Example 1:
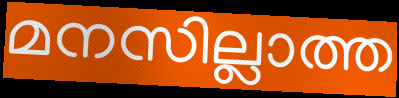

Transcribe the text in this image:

മനസില്ലാത്ത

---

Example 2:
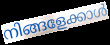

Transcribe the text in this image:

നിങ്ങളേക്കാൾ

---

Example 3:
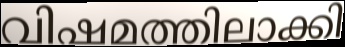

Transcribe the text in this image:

വിഷമത്തിലാക്കി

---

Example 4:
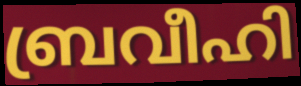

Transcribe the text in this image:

ബ്രവീഹി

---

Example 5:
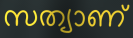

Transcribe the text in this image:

സത്യാണ്